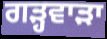
ਗੜ੍ਹਵਾੜਾ